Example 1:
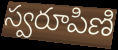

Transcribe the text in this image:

స్వరూపిణి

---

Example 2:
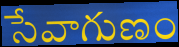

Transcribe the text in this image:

సేవాగుణం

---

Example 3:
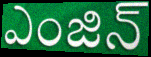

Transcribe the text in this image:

ఎంజిన్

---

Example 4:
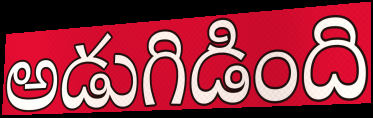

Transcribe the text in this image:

అడుగిడింది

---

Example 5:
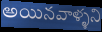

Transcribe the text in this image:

అయినవాళ్ళని